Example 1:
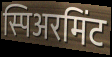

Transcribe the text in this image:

स्पिअरमिंट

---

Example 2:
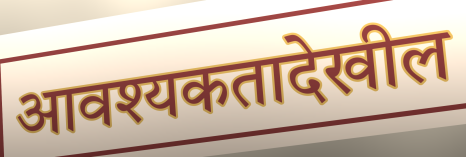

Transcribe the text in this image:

आवश्यकतादेखील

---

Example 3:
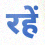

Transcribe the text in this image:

रहें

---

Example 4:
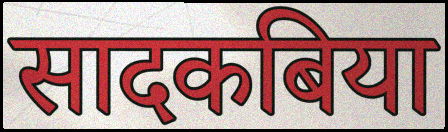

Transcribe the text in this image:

सादकबिया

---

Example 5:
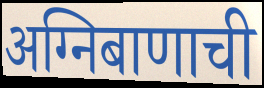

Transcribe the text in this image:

अग्निबाणाची